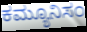
ಕಮ್ಯೂನಿಸಂ